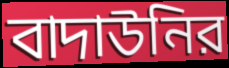
বাদাউনির